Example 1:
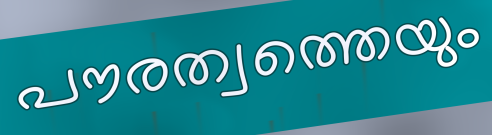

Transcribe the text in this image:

പൗരത്വത്തെയും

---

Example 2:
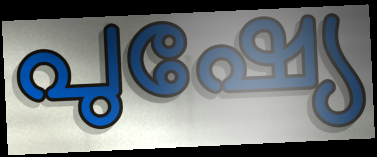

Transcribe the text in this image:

പുഷ്യേ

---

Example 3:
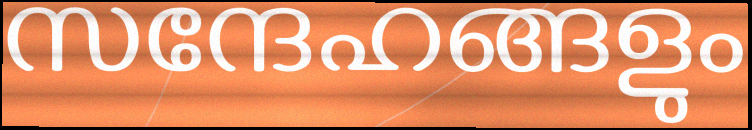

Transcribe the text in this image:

സന്ദേഹങ്ങളും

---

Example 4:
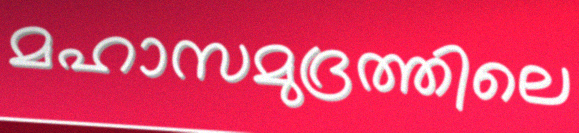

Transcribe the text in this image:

മഹാസമുദ്രത്തിലെ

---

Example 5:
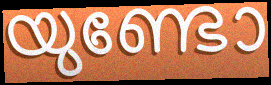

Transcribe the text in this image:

യുണ്ടോ